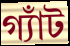
গ্যাঁট